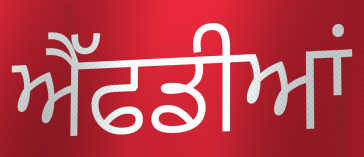
ਐੱਫਡੀਆਂ